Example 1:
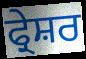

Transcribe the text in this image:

ਫ੍ਰੇਸ਼ਰ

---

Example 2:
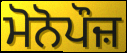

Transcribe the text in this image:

ਮੋਨੋਪੌਜ਼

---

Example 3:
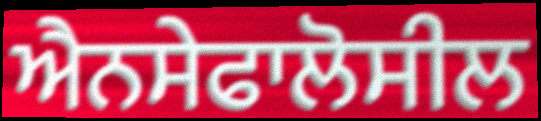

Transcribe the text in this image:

ਐਨਸੇਫਾਲੋਸੀਲ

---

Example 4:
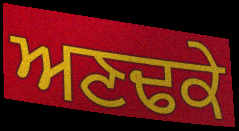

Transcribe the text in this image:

ਅਣਢਕੇ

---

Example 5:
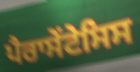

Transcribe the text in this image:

ਪੈਰਾਸੇਂਟੇਸਿਸ